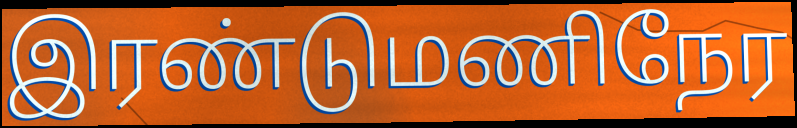
இரண்டுமணிநேர